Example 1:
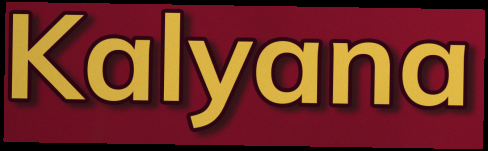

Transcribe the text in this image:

Kalyana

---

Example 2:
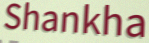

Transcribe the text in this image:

Shankha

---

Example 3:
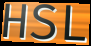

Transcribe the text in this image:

HSL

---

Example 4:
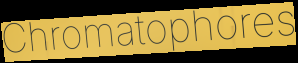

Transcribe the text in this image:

Chromatophores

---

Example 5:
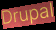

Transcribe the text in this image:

Drupal